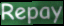
Repay